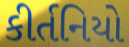
કીર્તનિયો